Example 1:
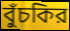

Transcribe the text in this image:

বুঁচকির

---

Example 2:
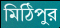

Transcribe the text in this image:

মিঠিপুর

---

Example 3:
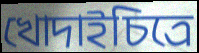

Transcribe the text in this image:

খোদাইচিত্রে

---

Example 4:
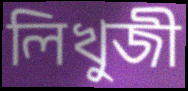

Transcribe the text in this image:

লিখুজী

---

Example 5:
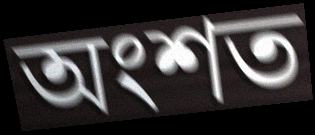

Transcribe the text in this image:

অংশত